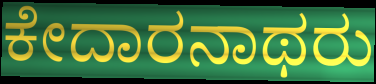
ಕೇದಾರನಾಥರು